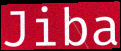
Jiba